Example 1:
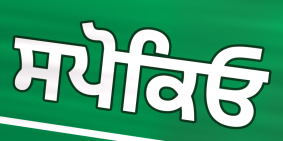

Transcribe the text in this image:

ਸਪੋਕਿਓ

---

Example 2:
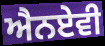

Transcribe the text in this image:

ਐਨਏਵੀ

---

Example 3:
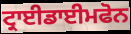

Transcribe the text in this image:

ਟ੍ਰਾਈਡਾਈਮਫੋਨ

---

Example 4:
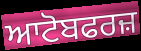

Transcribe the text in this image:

ਆਟੋਬਫਰਜ਼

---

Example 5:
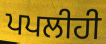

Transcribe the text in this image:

ਪਪਲੀਹੀ